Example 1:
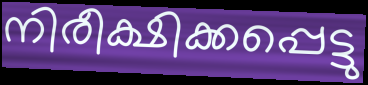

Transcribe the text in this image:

നിരീക്ഷിക്കപ്പെട്ടു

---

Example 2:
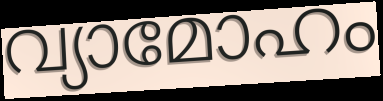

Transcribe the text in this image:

വ്യാമോഹം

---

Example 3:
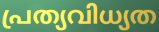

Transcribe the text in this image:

പ്രത്യവിധ്യത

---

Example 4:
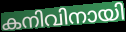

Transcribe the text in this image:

കനിവിനായി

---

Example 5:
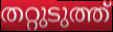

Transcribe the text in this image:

തറ്റുടുത്ത്